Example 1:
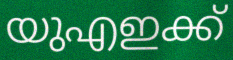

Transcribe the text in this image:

യുഎഇക്ക്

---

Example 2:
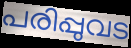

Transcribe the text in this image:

പരിപ്പുവട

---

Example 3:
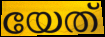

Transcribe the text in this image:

യേത്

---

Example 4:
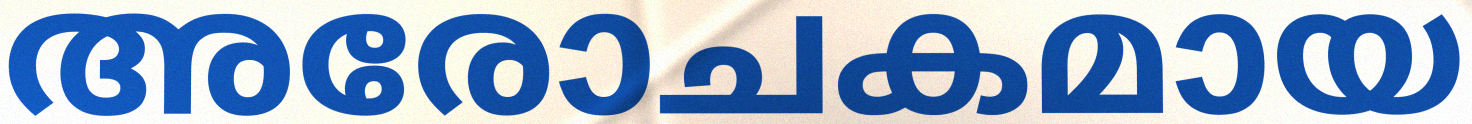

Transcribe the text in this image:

അരോചകമായ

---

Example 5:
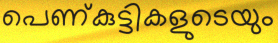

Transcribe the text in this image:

പെണ്കുട്ടികളുടെയും